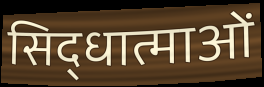
सिद्धात्माओं